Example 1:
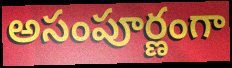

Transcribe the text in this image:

అసంపూర్ణంగా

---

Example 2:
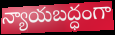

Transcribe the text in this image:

న్యాయబద్ధంగా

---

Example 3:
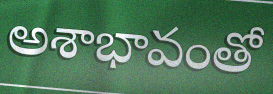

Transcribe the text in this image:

అశాభావంతో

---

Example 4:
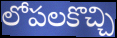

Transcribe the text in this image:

లోపలకొచ్చి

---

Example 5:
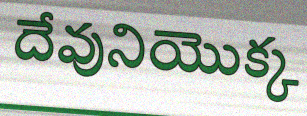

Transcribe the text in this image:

దేవునియొక్క